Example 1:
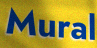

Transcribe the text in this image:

Mural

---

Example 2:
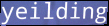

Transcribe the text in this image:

yeilding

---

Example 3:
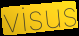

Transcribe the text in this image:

visus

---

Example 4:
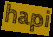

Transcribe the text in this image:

hapi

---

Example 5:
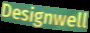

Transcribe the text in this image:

Designwell